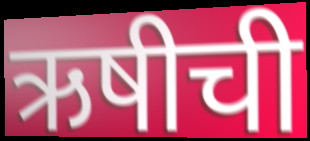
ऋषीची